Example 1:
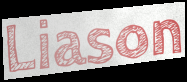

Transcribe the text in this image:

Liason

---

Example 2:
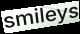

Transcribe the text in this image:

smileys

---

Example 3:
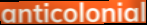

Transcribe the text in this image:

anticolonial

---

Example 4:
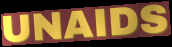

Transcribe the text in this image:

UNAIDS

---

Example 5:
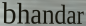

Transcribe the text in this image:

bhandar